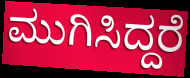
ಮುಗಿಸಿದ್ದರೆ